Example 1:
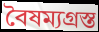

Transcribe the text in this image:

বৈষম্যগ্রস্ত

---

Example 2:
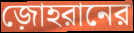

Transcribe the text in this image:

জ়োহরানের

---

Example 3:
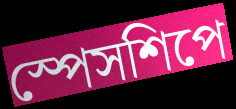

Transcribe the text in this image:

স্পেসশিপে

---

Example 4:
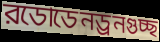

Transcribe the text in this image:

রডোডেনড্রনগুচ্ছ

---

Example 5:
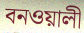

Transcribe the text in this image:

বনওয়ালী